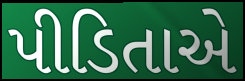
પીડિતાએ